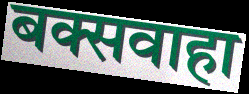
बक्सवाहा